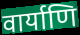
वार्याणि